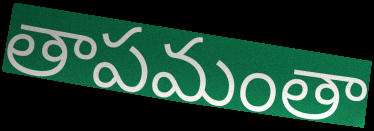
తాపమంతా